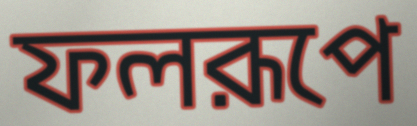
ফলরূপে